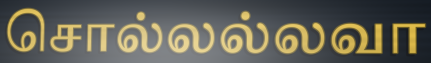
சொல்லல்லவா